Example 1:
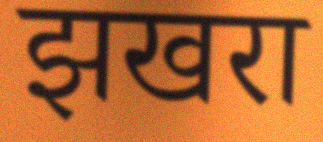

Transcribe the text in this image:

झखरा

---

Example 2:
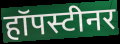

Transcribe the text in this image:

हॉपस्टीनर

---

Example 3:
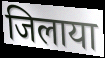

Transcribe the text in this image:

जिलाया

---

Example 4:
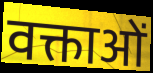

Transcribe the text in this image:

वक्ताओें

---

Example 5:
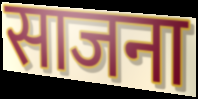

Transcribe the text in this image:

साजना